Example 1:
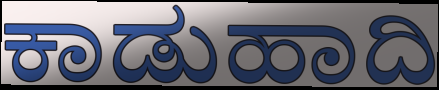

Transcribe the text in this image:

ಕಾಡುಹಾದಿ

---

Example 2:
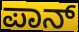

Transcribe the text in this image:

ಪಾನ್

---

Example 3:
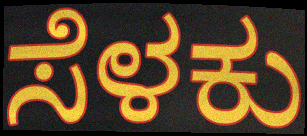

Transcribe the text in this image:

ಸೆಳಕು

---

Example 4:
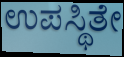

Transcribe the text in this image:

ಉಪಸ್ಥಿತೇ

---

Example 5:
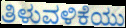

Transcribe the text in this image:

ತಿಳುವಳಿಕೆಯು